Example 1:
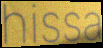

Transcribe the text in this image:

hissa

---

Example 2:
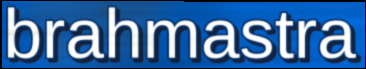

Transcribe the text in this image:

brahmastra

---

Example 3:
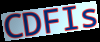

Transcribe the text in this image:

CDFIs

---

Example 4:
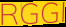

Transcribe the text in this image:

RGGI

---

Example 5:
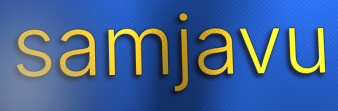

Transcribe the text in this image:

samjavu